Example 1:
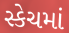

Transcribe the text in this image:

સ્કેચમાં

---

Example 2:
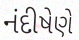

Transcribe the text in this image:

નંદીષેણે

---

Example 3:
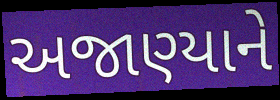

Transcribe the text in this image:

અજાણ્યાને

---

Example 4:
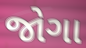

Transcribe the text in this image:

જોગા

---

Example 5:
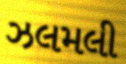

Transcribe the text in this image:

ઝલમલી